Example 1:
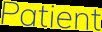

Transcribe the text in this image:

Patient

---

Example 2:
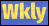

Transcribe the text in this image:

Wkly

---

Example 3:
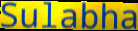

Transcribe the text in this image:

Sulabha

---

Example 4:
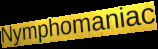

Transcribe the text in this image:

Nymphomaniac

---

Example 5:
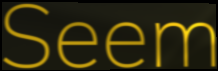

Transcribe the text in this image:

Seem